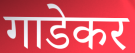
गाडेकर